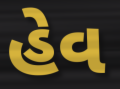
હેવ